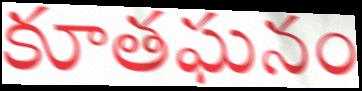
కూతఘనం